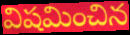
విషమించిన